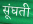
सूंघती